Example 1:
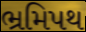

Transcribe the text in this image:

ભ્રમિપથ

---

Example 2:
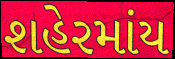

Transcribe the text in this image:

શહેરમાંય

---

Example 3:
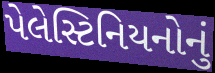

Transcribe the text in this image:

પેલેસ્ટિનિયનોનું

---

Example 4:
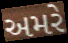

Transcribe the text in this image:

અમરે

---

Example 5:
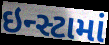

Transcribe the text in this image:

ઇન્સ્ટામાં